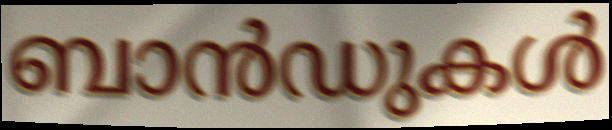
ബാൻഡുകൾ